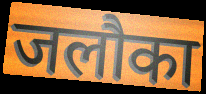
जलौका